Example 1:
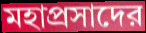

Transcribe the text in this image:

মহাপ্রসাদের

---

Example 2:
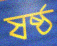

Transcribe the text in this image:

ষষ্ঠ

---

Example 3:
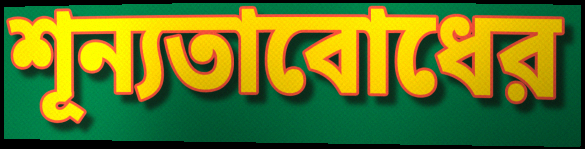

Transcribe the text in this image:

শূন্যতাবোধের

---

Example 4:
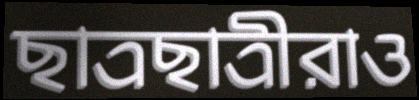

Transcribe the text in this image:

ছাত্রছাত্রীরাও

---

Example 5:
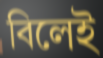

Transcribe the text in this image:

বিলেই